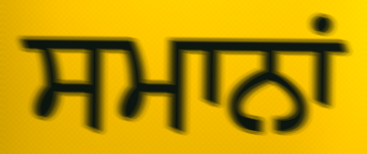
ਸਮਾਨਾਂ